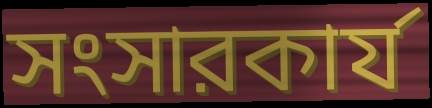
সংসারকার্য